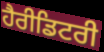
ਹੈਰੀਡਿਟਰੀ